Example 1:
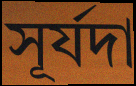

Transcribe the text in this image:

সূর্যদা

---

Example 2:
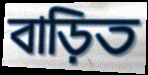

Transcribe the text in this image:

বাড়িত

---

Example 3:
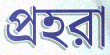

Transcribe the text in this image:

প্রহরা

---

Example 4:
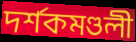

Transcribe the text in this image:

দর্শকমণ্ডলী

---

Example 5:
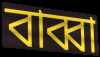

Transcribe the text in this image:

বাব্বা